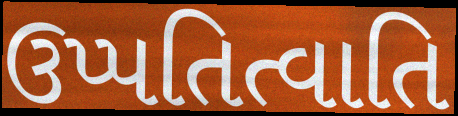
ઉપ્પતિત્વાતિ